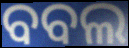
ବବଲ